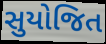
સુયોજિત